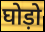
घोड़ो